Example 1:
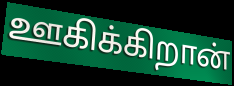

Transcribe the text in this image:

ஊகிக்கிறான்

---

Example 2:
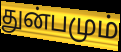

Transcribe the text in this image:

துன்பமும்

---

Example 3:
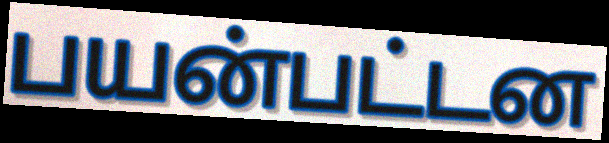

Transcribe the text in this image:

பயன்பட்டன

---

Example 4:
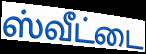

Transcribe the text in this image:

ஸ்வீட்டை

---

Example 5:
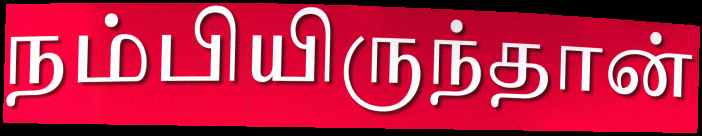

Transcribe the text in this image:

நம்பியிருந்தான்